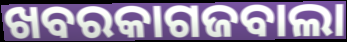
ଖବରକାଗଜବାଲା